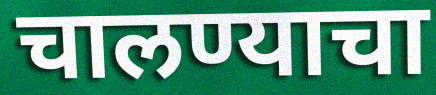
चालण्याचा